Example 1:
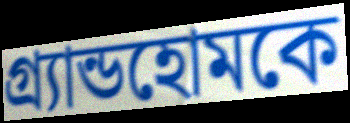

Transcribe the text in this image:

গ্র্যান্ডহোমকে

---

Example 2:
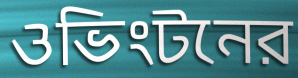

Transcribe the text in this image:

ওভিংটনের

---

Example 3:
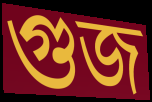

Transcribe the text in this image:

গুজ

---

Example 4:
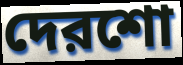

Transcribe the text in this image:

দেরশো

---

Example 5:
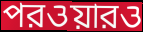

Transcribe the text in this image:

পরওয়ারও